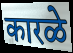
कारळे